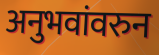
अनुभवांवरुन